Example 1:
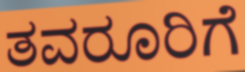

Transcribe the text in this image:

ತವರೂರಿಗೆ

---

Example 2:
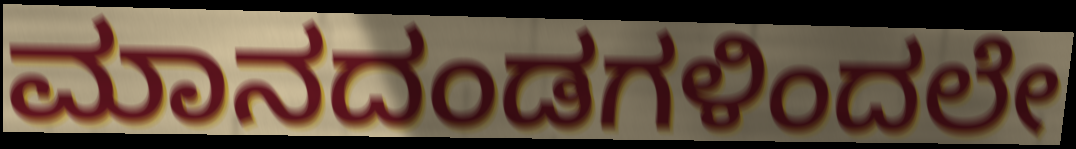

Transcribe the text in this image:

ಮಾನದಂಡಗಳಿಂದಲೇ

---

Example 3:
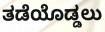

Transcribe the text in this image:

ತಡೆಯೊಡ್ಡಲು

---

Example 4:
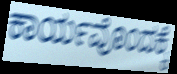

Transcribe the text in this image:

ಕಾರ್ಯವೊಂದಕ್ಕೆ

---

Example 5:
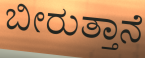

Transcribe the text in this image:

ಬೀರುತ್ತಾನೆ